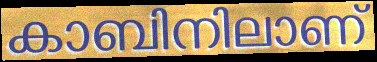
കാബിനിലാണ്